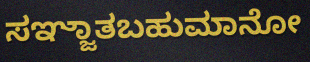
ಸಞ್ಜಾತಬಹುಮಾನೋ